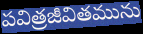
పవిత్రజీవితమును